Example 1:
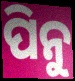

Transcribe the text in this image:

ପିନୁ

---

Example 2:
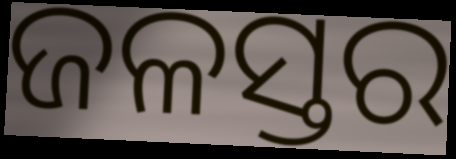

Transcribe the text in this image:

ଜଳସ୍ତର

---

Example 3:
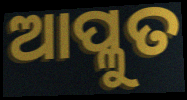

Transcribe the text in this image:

ଆପ୍ଳୁତ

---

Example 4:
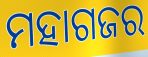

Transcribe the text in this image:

ମହାଗଜର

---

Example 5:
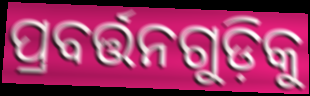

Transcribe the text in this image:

ପ୍ରବର୍ତ୍ତନଗୁଡ଼ିକୁ